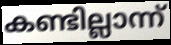
കണ്ടില്ലാന്ന്